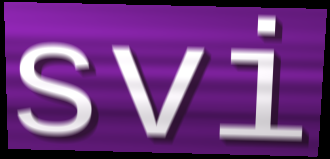
svi